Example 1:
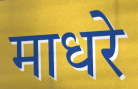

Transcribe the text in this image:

माधरे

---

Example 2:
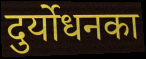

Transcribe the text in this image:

दुर्योधनका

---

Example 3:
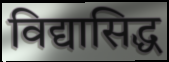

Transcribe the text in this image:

विद्यासिद्ध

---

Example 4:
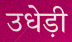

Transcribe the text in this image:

उधेड़ी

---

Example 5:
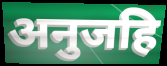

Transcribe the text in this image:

अनुजहि